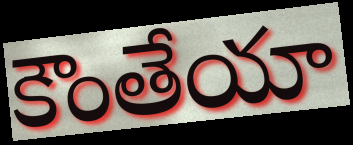
కౌంతేయా